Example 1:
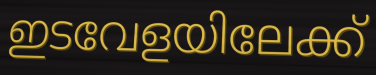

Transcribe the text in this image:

ഇടവേളയിലേക്ക്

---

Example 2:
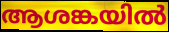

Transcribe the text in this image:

ആശങ്കയിൽ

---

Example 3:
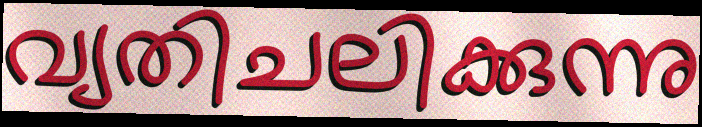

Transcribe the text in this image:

വ്യതിചലിക്കുന്നു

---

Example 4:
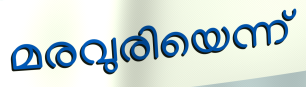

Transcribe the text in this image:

മരവുരിയെന്ന്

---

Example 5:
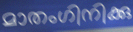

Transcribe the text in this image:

മാതംഗിനിക്കു